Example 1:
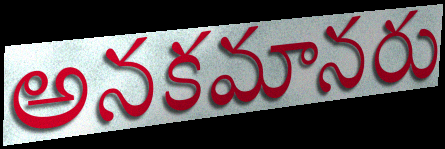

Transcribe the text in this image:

అనకమానరు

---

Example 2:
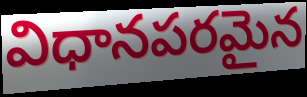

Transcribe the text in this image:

విధానపరమైన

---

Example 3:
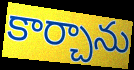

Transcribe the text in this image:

కార్చాను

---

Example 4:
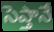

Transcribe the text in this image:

సెప్తానే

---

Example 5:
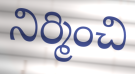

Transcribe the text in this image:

నిర్మించి